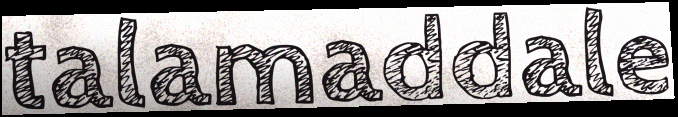
talamaddale